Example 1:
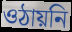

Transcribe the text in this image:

ওঠায়নি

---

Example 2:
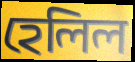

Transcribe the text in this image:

হেলিল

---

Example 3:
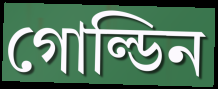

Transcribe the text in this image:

গোল্ডিন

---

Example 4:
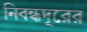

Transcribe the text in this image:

নিবন্ধদূরের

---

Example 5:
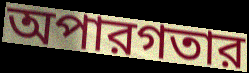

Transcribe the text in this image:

অপারগতার